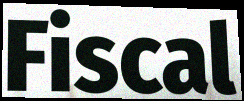
Fiscal